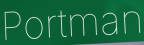
Portman